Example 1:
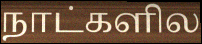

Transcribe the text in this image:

நாட்களில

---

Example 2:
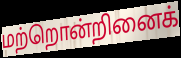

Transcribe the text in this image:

மற்றொன்றினைக்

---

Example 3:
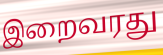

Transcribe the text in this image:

இறைவரது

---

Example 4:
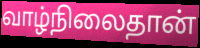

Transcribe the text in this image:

வாழ்நிலைதான்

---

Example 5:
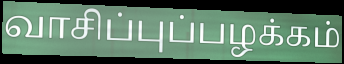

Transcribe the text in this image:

வாசிப்புப்பழக்கம்